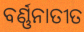
ବର୍ଣ୍ଣନାତୀତ